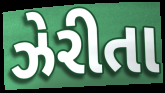
ઝેરીતા